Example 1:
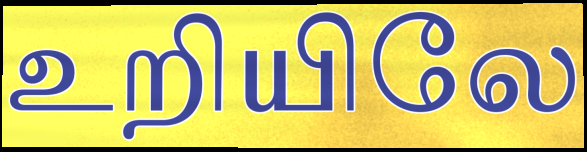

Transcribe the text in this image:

உறியிலே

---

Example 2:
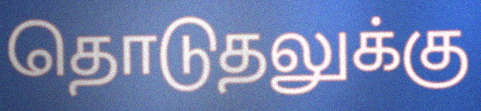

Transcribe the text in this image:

தொடுதலுக்கு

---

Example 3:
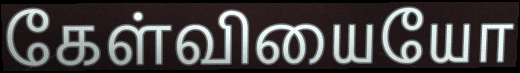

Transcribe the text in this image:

கேள்வியையோ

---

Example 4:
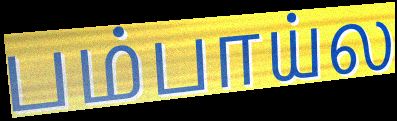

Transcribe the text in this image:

பம்பாய்ல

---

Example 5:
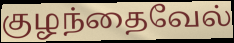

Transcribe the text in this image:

குழந்தைவேல்